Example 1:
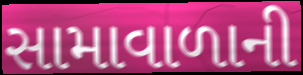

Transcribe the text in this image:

સામાવાળાની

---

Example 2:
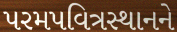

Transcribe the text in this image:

પરમપવિત્રસ્થાનને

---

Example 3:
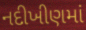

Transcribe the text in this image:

નદીખીણમાં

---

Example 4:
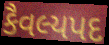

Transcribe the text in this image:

કૈવલ્યપદ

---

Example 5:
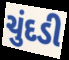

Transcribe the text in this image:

ચુંદડી